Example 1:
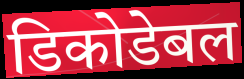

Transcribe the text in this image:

डिकोडेबल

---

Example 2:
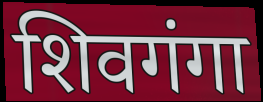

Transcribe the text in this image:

शिवगंगा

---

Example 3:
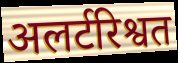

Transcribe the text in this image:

अलर्टरिश्वत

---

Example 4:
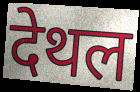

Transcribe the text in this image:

देथल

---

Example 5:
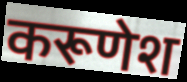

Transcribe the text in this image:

करूणेश